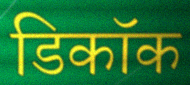
डिकॉक